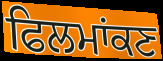
ਫਿਲਮਾਂਕਣ